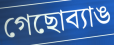
গেছোব্যাঙ